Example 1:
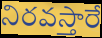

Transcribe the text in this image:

నిరవస్తారే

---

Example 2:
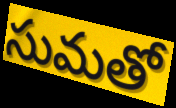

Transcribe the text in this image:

సుమతో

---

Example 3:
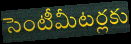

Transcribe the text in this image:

సెంటీమీటర్లకు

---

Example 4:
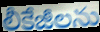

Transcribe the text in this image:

లీకేజీలను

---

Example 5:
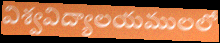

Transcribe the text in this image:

విశ్వవిద్యాలయములలో